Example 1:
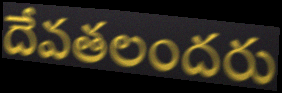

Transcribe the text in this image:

దేవతలందరు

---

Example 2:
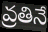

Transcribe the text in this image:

వ్రతినే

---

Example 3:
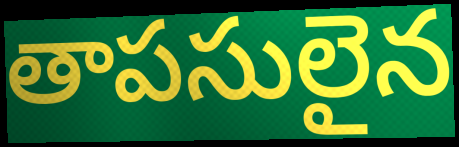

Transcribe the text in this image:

తాపసులైన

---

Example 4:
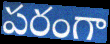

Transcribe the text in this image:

పరంగా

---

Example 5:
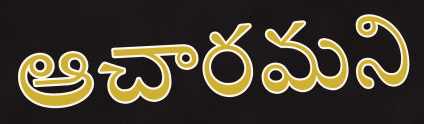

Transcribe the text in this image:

ఆచారమని